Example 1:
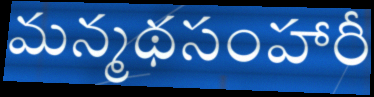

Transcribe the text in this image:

మన్మథసంహారీ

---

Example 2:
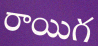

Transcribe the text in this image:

రాయిగ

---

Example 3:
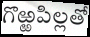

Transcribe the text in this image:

గొఱ్ఱపిల్లతో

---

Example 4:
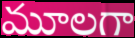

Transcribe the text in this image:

మూలగా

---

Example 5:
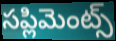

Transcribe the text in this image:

సప్లిమెంట్స్